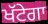
ਖੱਟੇਗਾ